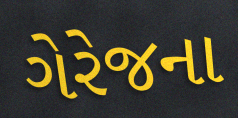
ગેરેજના